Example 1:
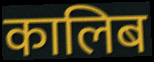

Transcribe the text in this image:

कालिब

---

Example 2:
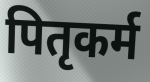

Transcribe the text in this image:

पितृकर्म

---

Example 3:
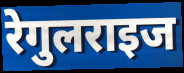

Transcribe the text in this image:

रेगुलराइज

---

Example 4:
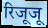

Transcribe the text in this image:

रिजूजू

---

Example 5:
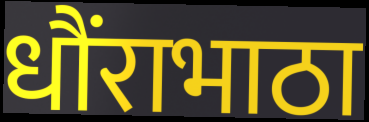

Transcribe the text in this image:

धौंराभाठा